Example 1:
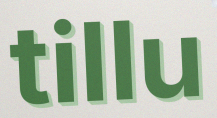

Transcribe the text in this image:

tillu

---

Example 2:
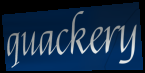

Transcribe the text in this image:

quackery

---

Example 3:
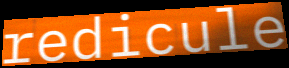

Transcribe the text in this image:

redicule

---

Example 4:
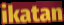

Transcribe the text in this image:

ikatan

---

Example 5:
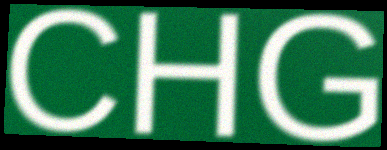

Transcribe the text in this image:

CHG